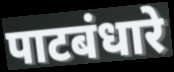
पाटबंधारे